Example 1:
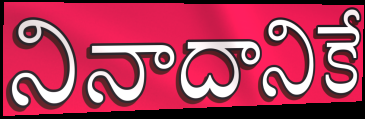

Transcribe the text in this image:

నినాదానికే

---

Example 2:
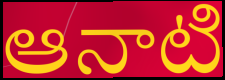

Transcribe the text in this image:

ఆనాటి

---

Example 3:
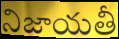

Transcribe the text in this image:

నిజాయతీ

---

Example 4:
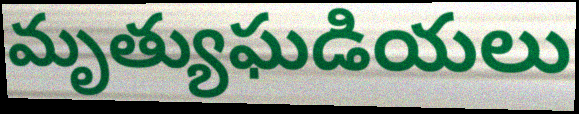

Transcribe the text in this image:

మృత్యుఘడియలు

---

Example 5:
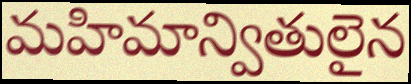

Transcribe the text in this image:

మహిమాన్వితులైన